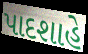
પાદશાહે